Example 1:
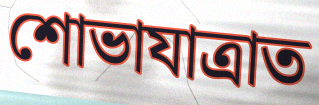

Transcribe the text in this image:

শোভাযাত্ৰাত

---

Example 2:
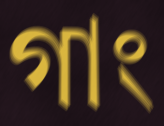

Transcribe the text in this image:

গাং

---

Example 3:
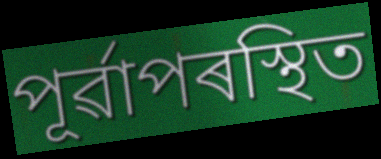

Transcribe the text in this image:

পূৰ্ৱাপৰস্থিত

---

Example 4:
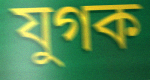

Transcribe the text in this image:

যুগক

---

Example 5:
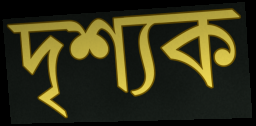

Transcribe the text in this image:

দৃশ্যক